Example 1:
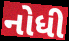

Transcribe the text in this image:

નોધી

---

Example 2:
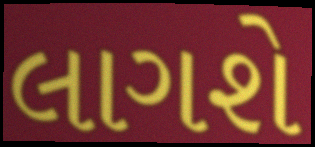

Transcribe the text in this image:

લાગશે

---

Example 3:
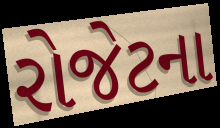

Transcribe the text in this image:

રોજેટના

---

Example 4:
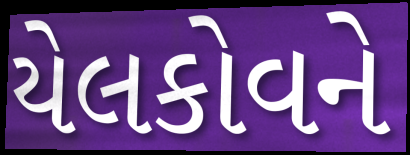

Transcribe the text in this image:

યેલકોવને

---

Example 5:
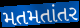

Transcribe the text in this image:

મતમતાંતર